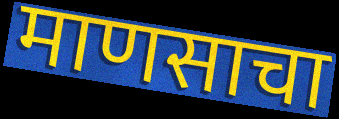
माणसाचा